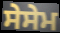
ਸੇਸੇਮ